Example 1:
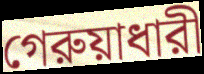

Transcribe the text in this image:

গেরুয়াধারী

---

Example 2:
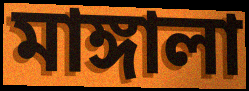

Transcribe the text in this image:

মাঙ্গালা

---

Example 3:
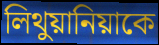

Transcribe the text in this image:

লিথুয়ানিয়াকে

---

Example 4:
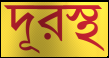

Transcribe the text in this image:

দূরস্থ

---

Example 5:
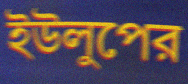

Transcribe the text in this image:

ইউলুপের